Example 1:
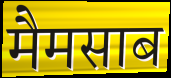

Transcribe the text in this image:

मैमसाब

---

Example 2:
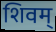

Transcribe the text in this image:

शिवम्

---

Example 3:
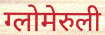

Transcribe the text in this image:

ग्लोमेरुली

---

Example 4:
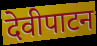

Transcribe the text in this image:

देवीपाटन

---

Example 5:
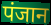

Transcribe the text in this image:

पंजान